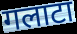
गलाटा